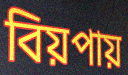
বিয়পায়